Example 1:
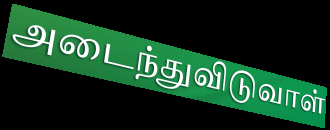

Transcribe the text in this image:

அடைந்துவிடுவாள்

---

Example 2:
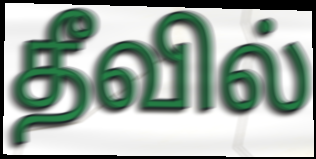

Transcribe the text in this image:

தீவில்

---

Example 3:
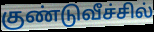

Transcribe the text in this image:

குண்டுவீச்சில்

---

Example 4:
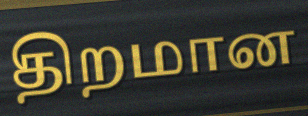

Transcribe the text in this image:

திறமான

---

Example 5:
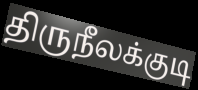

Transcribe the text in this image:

திருநீலக்குடி